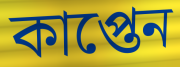
কাপ্তেন